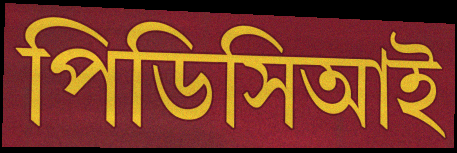
পিডিসিআই